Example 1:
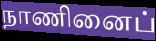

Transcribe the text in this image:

நாணினைப்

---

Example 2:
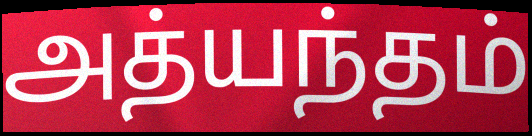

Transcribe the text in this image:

அத்யந்தம்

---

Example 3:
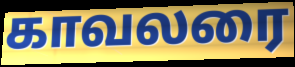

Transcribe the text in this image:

காவலரை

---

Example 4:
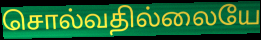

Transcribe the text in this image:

சொல்வதில்லையே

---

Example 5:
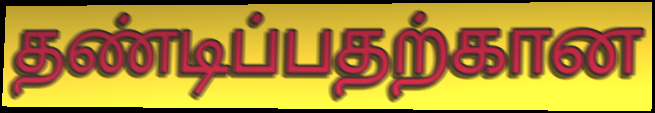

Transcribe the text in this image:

தண்டிப்பதற்கான